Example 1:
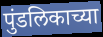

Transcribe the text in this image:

पुंडलिकाच्या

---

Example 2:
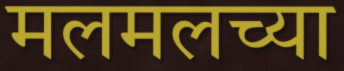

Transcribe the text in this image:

मलमलच्या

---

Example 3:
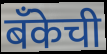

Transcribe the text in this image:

बँकेची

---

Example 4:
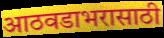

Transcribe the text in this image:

आठवडाभरासाठी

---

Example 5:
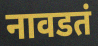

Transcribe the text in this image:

नावडतं